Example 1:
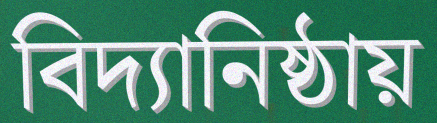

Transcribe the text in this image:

বিদ্যানিষ্ঠায়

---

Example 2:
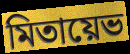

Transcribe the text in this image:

মিতায়েভ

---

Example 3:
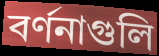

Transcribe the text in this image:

বর্ণনাগুলি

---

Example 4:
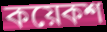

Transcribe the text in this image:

কয়েকশ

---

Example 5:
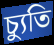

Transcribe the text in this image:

চ্যুতি